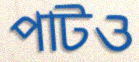
পাটও